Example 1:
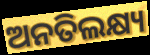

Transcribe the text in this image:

ଅନତିଲକ୍ଷ୍ୟ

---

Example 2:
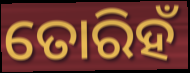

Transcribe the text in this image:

ତୋରିହଁ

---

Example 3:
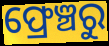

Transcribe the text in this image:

ଫ୍ରେଞ୍ଚରୁ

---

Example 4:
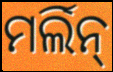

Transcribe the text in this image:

ମର୍ଲିନ୍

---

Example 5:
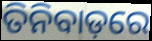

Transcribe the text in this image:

ତିନିବାଡ଼ରେ